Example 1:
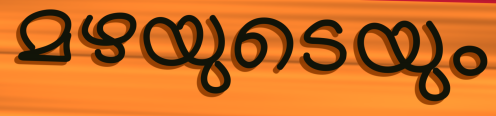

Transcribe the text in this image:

മഴയുടെയും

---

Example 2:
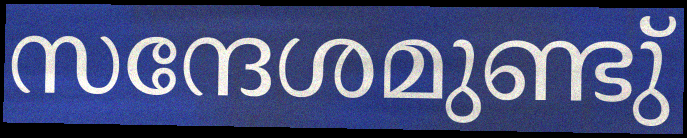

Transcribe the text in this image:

സന്ദേശമുണ്ടു്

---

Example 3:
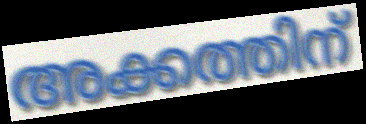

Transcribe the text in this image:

അക്കത്തിന്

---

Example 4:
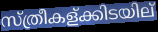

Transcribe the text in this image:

സ്ത്രീകള്ക്കിടയില്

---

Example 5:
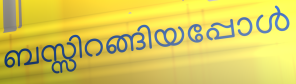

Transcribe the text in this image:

ബസ്സിറങ്ങിയപ്പോൾ